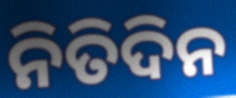
ନିତିଦିନ